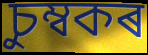
চুম্বকৰ